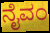
ನೈವಂ